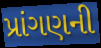
પ્રાંગણની